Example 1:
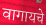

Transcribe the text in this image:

वागायचे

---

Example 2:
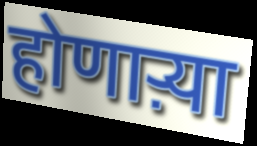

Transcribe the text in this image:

होणाऱ्‍या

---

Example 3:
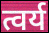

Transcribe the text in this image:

त्वर्य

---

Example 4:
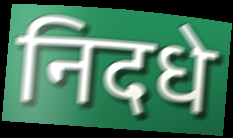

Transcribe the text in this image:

निदधे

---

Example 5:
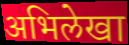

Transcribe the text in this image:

अभिलेखा